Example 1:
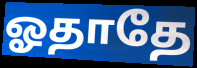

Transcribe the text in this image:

ஓதாதே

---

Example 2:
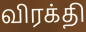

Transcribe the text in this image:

விரக்தி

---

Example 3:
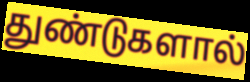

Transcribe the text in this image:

துண்டுகளால்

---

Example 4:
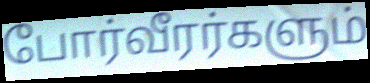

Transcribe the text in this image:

போர்வீரர்களும்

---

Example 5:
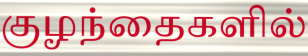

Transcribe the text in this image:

குழந்தைகளில்